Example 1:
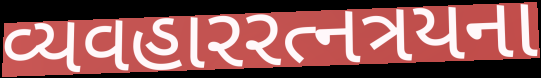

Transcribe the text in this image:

વ્યવહારરત્નત્રયના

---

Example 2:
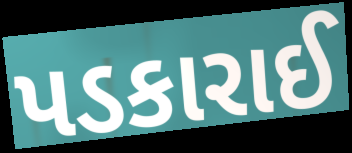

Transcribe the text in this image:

પડકારાઈ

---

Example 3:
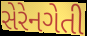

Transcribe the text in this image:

સેરેનગેતી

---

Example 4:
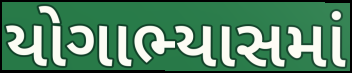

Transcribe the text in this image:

યોગાભ્યાસમાં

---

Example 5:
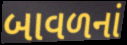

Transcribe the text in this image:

બાવળનાં